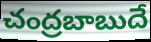
చంద్రబాబుదే